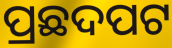
ପ୍ରଛଦପଟ